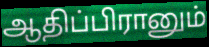
ஆதிப்பிரானும்